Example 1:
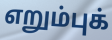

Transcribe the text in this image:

எறும்புக்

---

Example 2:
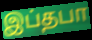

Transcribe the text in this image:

இப்தபா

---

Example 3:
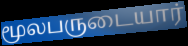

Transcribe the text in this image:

மூலபருடையார்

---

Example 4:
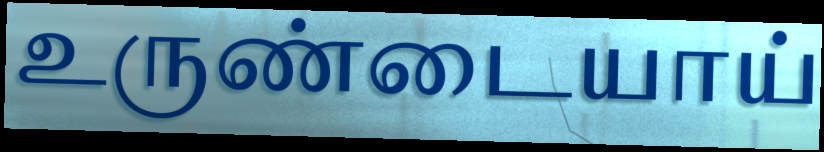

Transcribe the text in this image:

உருண்டையாய்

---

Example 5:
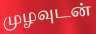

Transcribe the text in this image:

முழவுடன்